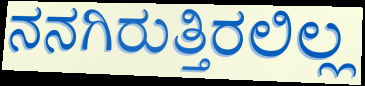
ನನಗಿರುತ್ತಿರಲಿಲ್ಲ